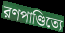
রণপাণ্ডিত্যে